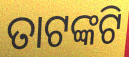
ତାଟଙ୍କଟି